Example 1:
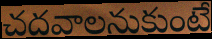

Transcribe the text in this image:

చదవాలనుకుంటే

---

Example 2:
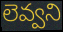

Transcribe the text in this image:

లెవ్వని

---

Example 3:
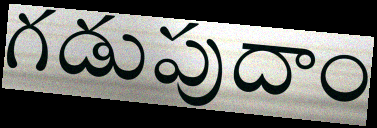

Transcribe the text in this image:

గడుపుదాం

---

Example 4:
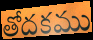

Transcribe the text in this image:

తోదకము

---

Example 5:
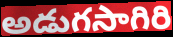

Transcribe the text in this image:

అడుగసాగిరి